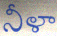
నీళా